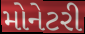
મોનેટરી